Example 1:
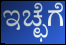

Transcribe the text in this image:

ಇಚ್ಛೆಗೆ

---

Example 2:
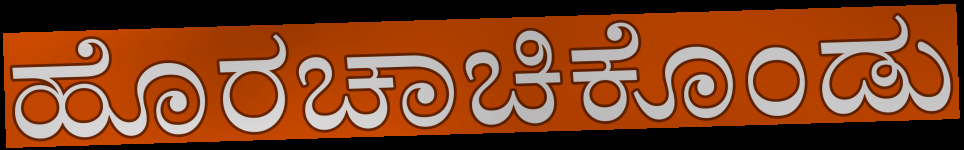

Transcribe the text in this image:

ಹೊರಚಾಚಿಕೊಂಡು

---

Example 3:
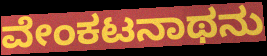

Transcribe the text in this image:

ವೇಂಕಟನಾಥನು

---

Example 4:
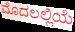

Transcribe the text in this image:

ಮೊದಲಲ್ಲಿಯೆ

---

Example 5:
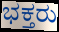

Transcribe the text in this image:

ಭಕ್ತರು